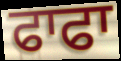
ਫਾਫਾ